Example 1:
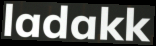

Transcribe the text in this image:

ladakk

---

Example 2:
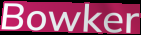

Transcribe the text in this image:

Bowker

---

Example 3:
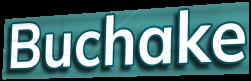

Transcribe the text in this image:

Buchake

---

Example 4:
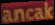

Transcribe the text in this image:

ancak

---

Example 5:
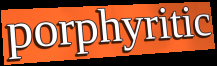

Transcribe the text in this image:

porphyritic